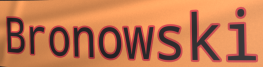
Bronowski